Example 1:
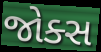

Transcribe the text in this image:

જોક્સ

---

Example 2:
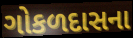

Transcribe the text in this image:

ગોકળદાસના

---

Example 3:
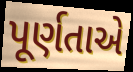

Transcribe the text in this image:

પૂર્ણતાએ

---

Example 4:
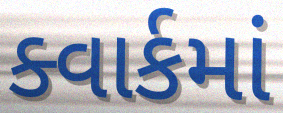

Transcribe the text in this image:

ક્વાર્કમાં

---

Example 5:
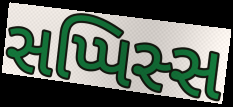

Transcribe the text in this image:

સપ્પિસ્સ